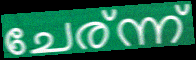
ചേര്ന്ന്